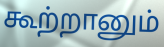
கூற்றானும்